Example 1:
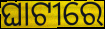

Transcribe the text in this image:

ଘାଟୀରେ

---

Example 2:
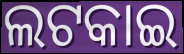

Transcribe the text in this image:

ଲଟକାଇ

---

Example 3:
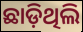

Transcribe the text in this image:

ଛାଡ଼ିଥିଲି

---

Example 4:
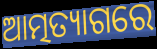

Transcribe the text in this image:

ଆତ୍ମତ୍ୟାଗରେ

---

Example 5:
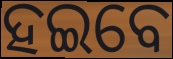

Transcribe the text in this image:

ହଇବେ